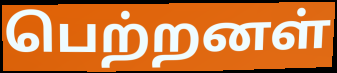
பெற்றனள்